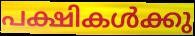
പക്ഷികൾക്കു